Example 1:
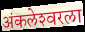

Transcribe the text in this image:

अंकलेश्वरला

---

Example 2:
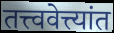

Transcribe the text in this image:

तत्त्ववेत्त्यांत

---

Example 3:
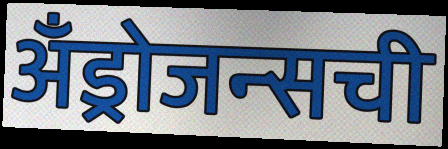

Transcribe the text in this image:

अँड्रोजन्सची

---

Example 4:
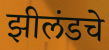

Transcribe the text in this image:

झीलंडचे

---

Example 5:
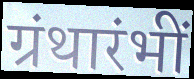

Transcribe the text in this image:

ग्रंथारंभीं